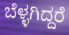
ಬೆಳ್ಳಗಿದ್ದರೆ